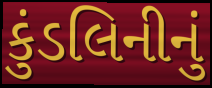
કુંડલિનીનું